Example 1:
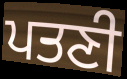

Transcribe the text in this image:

ਪਤਣੀ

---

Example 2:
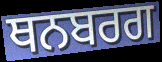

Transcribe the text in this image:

ਥਨਬਰਗ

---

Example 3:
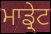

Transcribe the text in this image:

ਮਾਡ੍ਰੇਟ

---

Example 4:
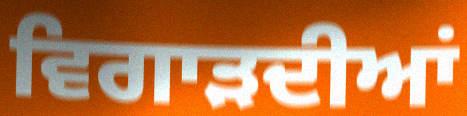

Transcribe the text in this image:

ਵਿਗਾੜਦੀਆਂ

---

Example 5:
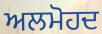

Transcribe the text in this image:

ਅਲਮੋਹਦ